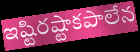
ఇష్టిరష్టాకపాలేన